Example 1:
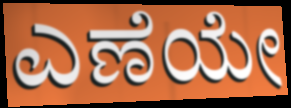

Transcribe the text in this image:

ಎಣೆಯೇ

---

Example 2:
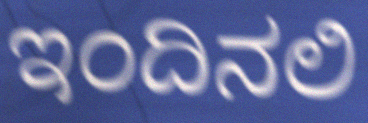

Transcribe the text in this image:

ಇಂದಿನಲಿ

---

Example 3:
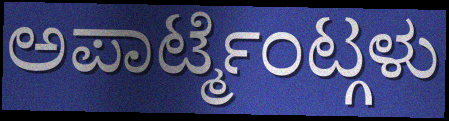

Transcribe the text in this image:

ಅಪಾರ್ಟ್ಮೆಂಟ್ಗಳು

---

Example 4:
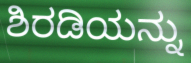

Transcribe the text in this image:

ಶಿರಡಿಯನ್ನು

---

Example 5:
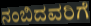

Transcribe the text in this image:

ನಂಬಿದವರಿಗೆ